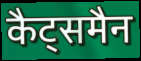
कैट्समैन